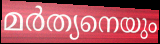
മർത്യനെയും